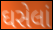
ઘસેલાં